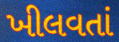
ખીલવતાં